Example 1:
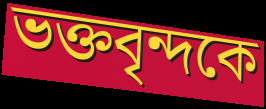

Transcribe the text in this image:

ভক্তবৃন্দকে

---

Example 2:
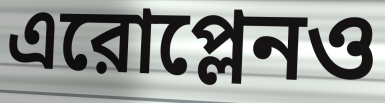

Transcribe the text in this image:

এরোপ্লেনও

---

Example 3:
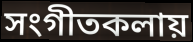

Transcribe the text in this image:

সংগীতকলায়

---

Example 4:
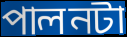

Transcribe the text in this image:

পালনটা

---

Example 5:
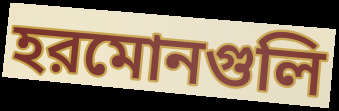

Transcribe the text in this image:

হরমোনগুলি